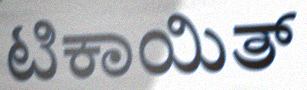
ಟಿಕಾಯಿತ್